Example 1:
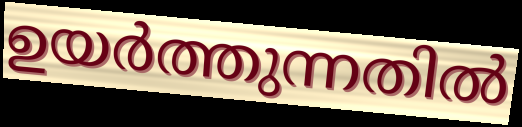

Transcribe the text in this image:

ഉയർത്തുന്നതിൽ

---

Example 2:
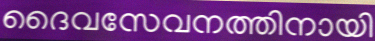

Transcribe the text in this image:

ദൈവസേവനത്തിനായി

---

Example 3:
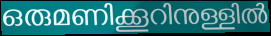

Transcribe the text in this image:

ഒരുമണിക്കൂറിനുള്ളിൽ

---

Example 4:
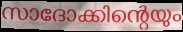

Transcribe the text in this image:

സാദോക്കിന്റെയും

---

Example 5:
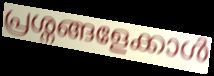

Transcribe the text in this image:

പ്രശ്നങ്ങളേക്കാൾ